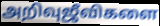
அறிவுஜீவிகளை